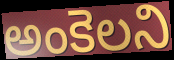
అంకెలని